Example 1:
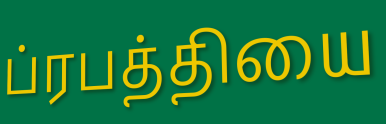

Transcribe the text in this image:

ப்ரபத்தியை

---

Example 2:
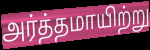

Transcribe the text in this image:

அர்த்தமாயிற்று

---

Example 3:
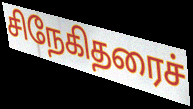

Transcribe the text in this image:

சிநேகிதரைச்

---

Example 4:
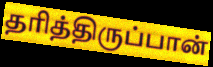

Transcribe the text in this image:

தரித்திருப்பான்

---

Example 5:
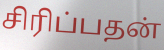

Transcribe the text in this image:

சிரிப்பதன்